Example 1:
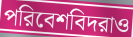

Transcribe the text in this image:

পরিবেশবিদরাও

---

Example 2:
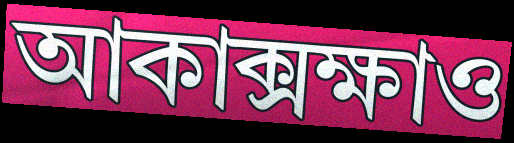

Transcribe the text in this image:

আকাক্সক্ষাও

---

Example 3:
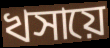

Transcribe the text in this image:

খসায়ে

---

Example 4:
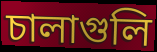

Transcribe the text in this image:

চালাগুলি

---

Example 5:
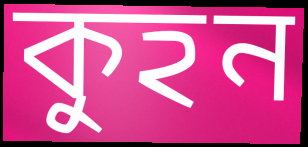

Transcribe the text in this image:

কুহন